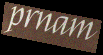
prnam